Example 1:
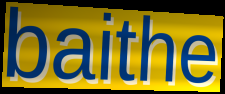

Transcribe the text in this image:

baithe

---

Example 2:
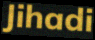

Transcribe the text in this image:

Jihadi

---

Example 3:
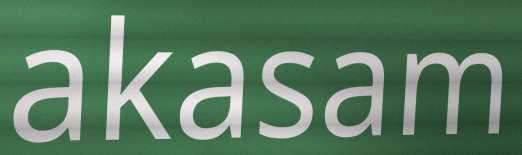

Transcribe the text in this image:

akasam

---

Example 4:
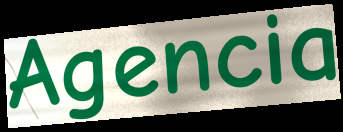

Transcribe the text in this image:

Agencia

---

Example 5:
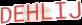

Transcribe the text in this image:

DEHLIJ